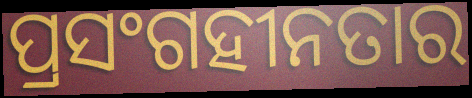
ପ୍ରସଂଗହୀନତାର